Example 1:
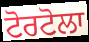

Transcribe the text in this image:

ਟੋਰਟੋਲਾ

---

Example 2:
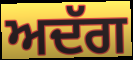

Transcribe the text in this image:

ਅਦੱਗ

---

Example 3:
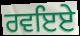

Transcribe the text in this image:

ਰਵਇਏ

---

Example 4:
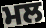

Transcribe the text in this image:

ਮਲ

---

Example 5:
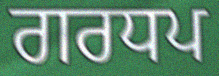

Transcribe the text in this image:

ਗਰਧਪ